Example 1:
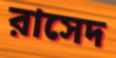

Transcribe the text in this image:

রাসেদ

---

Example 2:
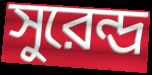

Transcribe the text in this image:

সুরেন্দ্র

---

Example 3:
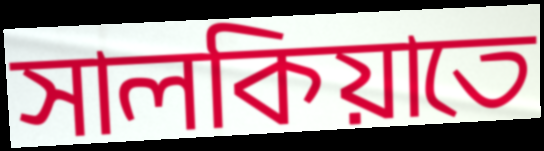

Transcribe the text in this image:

সালকিয়াতে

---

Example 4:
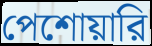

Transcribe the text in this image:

পেশোয়ারি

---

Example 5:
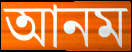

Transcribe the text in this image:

আনম